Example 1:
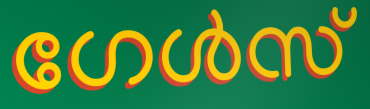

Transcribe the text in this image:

ഗേൾസ്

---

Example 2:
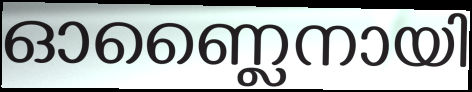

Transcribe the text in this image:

ഓണ്ലൈനായി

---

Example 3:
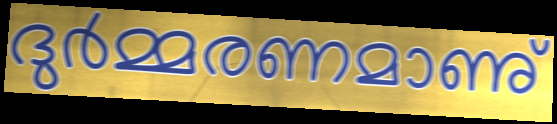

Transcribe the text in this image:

ദുർമ്മരണമാണു്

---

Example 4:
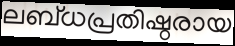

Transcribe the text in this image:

ലബ്ധപ്രതിഷ്ഠരായ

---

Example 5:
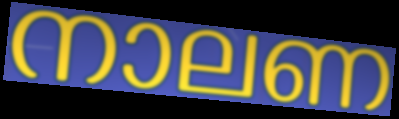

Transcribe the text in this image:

നാലണ